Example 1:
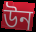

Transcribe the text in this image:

উন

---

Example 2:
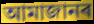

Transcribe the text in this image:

আমাজানৰ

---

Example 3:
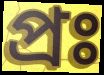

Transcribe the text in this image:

প্ৰঃ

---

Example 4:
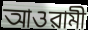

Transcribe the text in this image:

আওৱামী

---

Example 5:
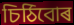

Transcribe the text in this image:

চিঠিবোৰ